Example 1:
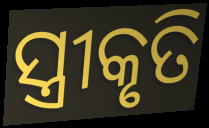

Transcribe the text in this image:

ସ୍ତ୍ରୀକୃତି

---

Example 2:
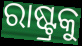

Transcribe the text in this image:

ରାଷ୍ଟ୍ରକୁ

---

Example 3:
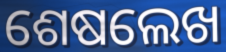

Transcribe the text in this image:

ଶେଷଲେଖ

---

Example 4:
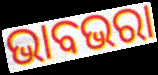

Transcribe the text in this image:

ଭାବଭରା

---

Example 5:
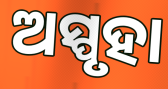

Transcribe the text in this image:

ଅସ୍ପୃହା